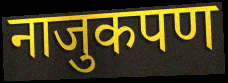
नाजुकपण